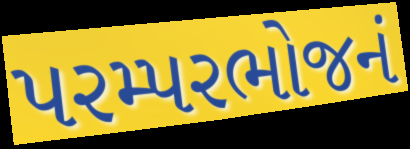
પરમ્પરભોજનં